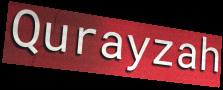
Qurayzah